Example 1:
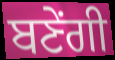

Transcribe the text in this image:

ਬਣੇਂਗੀ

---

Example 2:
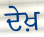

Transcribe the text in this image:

ਦੇਖ਼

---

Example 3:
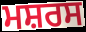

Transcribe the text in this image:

ਮਸ਼ਰਸ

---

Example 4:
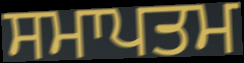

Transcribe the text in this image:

ਸਮਾਪਤਮ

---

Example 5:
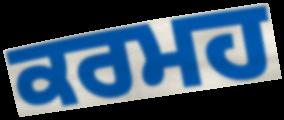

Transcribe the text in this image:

ਕਰਮਹ